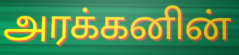
அரக்கனின்